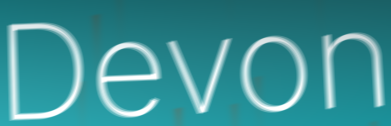
Devon